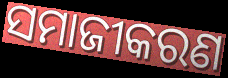
ସମାଜୀକରଣ